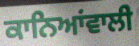
ਕਾਨਿਆਂਵਾਲੀ